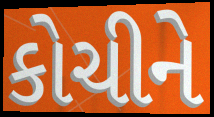
કોચીને